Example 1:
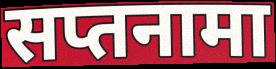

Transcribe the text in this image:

सप्तनामा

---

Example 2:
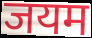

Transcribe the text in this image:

जयम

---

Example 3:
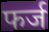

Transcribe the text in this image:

फर्ज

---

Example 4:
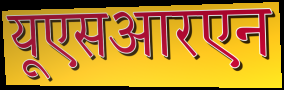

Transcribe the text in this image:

यूएसआरएन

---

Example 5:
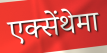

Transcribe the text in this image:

एक्सेंथेमा